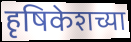
हृषिकेशच्या